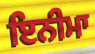
ਇਨੀਮਾ